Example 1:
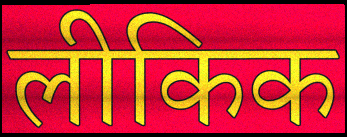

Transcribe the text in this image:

लीकिक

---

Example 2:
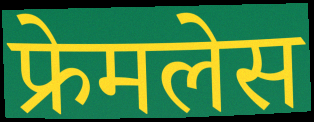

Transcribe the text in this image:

फ्रेमलेस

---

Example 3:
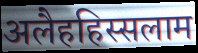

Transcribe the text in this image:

अलैहहिस्सलाम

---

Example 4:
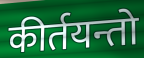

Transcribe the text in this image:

कीर्तयन्तो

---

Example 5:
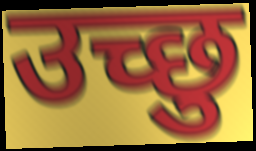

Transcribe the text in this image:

उच्छु